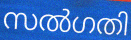
സൽഗതി